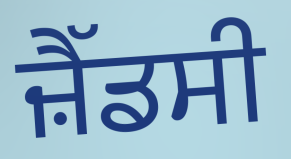
ਜ਼ੈੱਡਸੀ